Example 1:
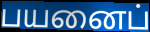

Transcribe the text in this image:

பயனைப்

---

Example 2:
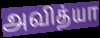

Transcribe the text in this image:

அவித்யா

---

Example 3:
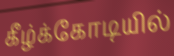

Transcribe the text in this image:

கீழ்க்கோடியில்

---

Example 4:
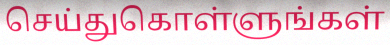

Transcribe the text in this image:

செய்துகொள்ளுங்கள்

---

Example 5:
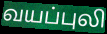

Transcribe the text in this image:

வயப்புலி